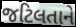
જટિલતાને